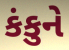
કંકુને